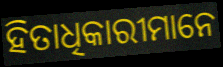
ହିତାଧିକାରୀମାନେ